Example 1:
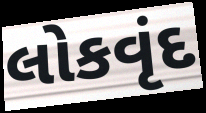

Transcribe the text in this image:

લોકવૃંદ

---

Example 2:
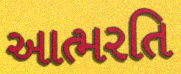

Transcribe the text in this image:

આત્મરતિ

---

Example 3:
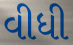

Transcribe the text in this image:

વીધી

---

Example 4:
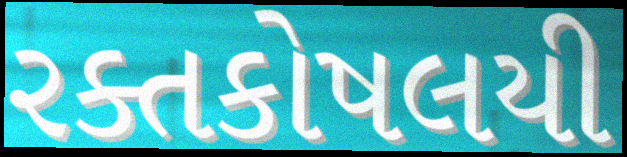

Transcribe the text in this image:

રક્તકોષલયી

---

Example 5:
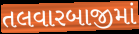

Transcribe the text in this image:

તલવારબાજીમાં